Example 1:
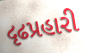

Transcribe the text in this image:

દૃઢપ્રહારી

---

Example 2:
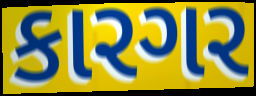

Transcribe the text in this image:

કારગર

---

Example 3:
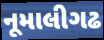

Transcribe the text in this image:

નૂમાલીગઢ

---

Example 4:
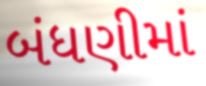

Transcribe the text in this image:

બંધણીમાં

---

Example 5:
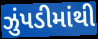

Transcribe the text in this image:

ઝુંપડીમાંથી